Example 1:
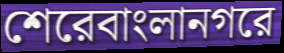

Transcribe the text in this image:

শেরেবাংলানগরে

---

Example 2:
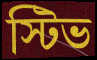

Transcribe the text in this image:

স্টিভ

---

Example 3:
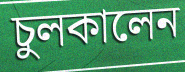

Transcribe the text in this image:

চুলকালেন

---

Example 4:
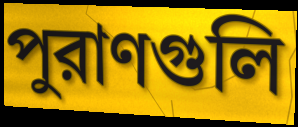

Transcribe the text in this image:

পুরাণগুলি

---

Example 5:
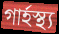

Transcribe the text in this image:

গার্হস্থ্য